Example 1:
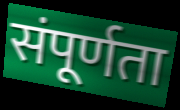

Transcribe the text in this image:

संपूर्णता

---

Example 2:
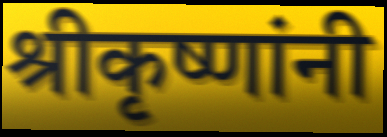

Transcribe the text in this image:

श्रीकृष्णांनी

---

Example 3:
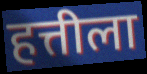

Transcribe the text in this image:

हत्तीला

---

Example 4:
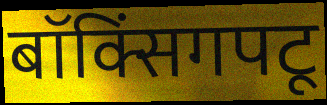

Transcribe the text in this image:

बॉक्सिंगपटू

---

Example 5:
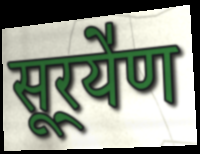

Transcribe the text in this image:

सूर्ये॑ण